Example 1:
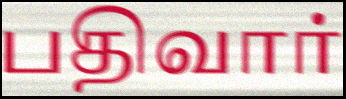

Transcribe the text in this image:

பதிவார்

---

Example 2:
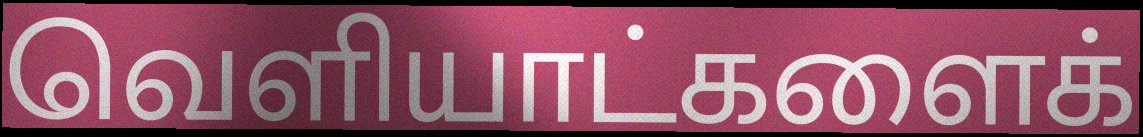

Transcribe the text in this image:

வெளியாட்களைக்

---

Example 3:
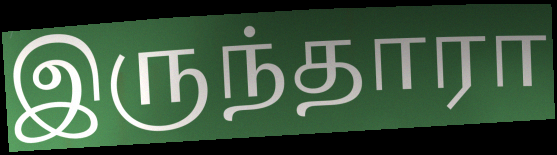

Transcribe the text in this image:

இருந்தாரா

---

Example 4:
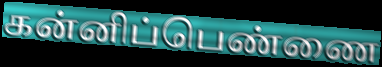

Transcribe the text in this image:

கன்னிப்பெண்ணை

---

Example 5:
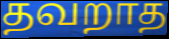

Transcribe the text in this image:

தவறாத